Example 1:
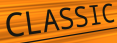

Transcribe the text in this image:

CLASSIC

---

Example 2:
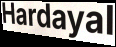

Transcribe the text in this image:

Hardayal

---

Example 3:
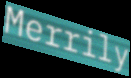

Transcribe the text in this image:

Merrily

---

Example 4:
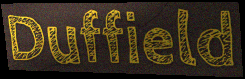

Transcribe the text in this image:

Duffield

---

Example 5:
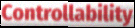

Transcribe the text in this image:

Controllability